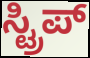
ಸ್ಟ್ರಿಪ್